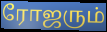
ரோஜரும்